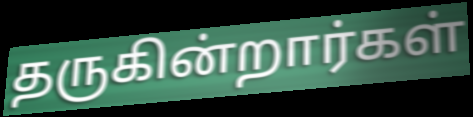
தருகின்றார்கள்